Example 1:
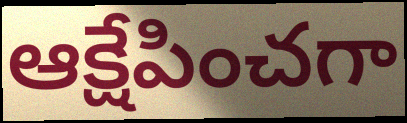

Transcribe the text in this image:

ఆక్షేపించగా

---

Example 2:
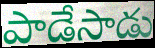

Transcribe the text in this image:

పాడేసాడు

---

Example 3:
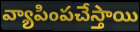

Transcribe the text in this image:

వ్యాపింపచేస్తాయి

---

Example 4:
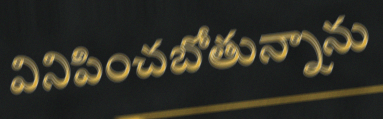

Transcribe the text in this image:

వినిపించబోతున్నాను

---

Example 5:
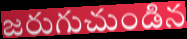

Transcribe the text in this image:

జరుగుచుండిన